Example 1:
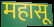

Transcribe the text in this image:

महासू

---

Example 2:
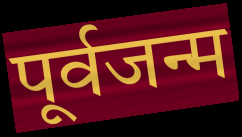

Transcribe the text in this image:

पूर्वजन्‍म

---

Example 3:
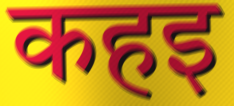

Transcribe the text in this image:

कहइ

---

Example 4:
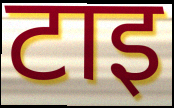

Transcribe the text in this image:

टाइ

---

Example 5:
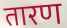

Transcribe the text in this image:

तारण